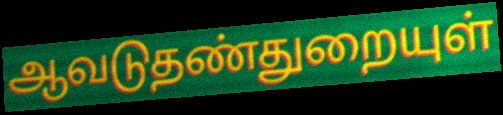
ஆவடுதண்துறையுள்